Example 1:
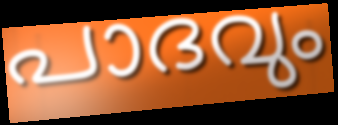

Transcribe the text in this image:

പാദവും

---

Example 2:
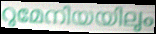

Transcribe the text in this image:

റുമേനിയയിലും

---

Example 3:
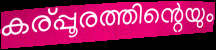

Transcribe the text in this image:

കര്പ്പൂരത്തിന്റെയും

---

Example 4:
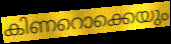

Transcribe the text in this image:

കിണറൊക്കെയും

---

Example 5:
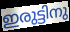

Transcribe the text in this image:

ഇരുട്ടിനു